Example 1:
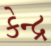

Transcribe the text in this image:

કેન્દ્ર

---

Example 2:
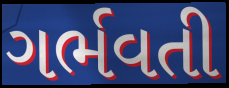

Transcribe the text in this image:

ગર્ભવતી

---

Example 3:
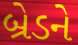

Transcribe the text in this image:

બ્રેડને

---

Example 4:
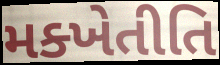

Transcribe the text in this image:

મક્ખેતીતિ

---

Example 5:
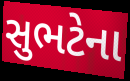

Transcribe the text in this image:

સુભટેના